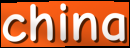
china